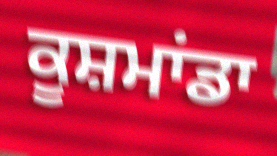
ਕੂਸ਼ਮਾਂਡਾ